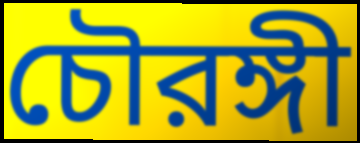
চৌরঙ্গী